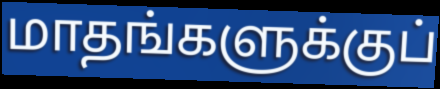
மாதங்களுக்குப்